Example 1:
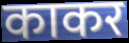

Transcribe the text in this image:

काकर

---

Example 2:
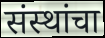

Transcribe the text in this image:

संस्थांचा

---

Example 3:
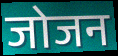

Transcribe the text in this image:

जोजन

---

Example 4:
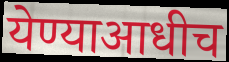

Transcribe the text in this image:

येण्याआधीच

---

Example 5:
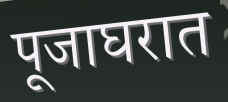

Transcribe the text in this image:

पूजाघरात